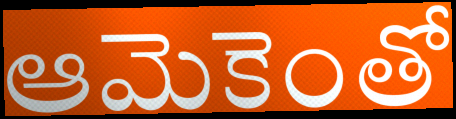
ఆమెకెంతో